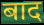
बाद